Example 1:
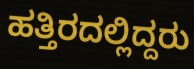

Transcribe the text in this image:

ಹತ್ತಿರದಲ್ಲಿದ್ದರು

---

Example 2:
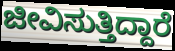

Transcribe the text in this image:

ಜೀವಿಸುತ್ತಿದ್ದಾರೆ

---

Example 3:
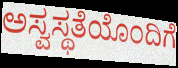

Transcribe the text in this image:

ಅಸ್ವಸ್ಥತೆಯೊಂದಿಗೆ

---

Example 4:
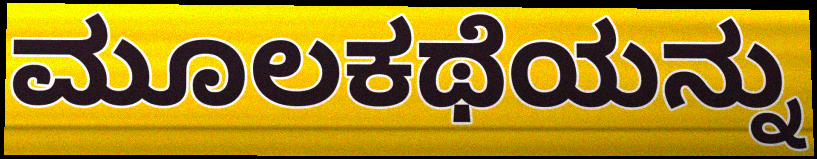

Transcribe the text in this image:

ಮೂಲಕಥೆಯನ್ನು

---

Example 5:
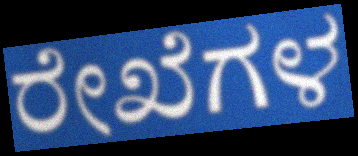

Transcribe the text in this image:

ರೇಖೆಗಳ